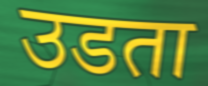
उडता